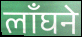
लाँघने